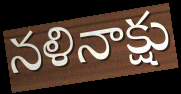
నళినాక్షు